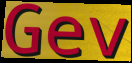
Gev